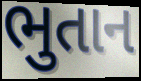
ભુતાન